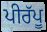
ਪੀਰੱਪੂ